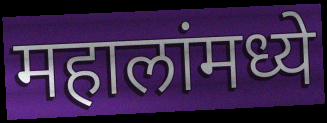
महालांमध्ये